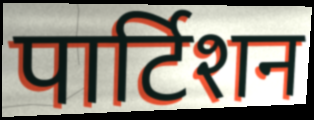
पार्टिशन